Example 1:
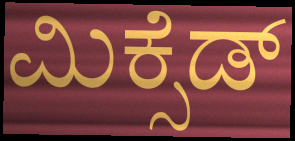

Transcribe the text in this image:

ಮಿಕ್ಸೆಡ್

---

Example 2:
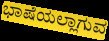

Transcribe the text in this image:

ಭಾಷೆಯಲ್ಲಾಗುವ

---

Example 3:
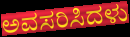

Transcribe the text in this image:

ಅವಸರಿಸಿದಳು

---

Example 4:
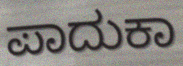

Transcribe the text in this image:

ಪಾದುಕಾ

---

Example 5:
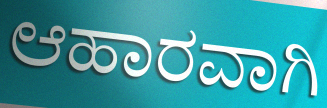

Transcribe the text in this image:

ಆಹಾರವಾಗಿ